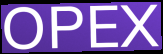
OPEX